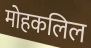
मोहकलिल